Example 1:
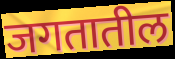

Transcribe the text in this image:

जगतातील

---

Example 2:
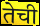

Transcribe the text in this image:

तेची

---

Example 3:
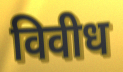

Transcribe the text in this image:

विवीध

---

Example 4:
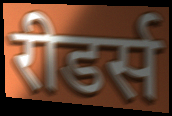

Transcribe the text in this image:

रीडर्स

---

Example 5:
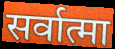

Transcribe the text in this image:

सर्वात्मा